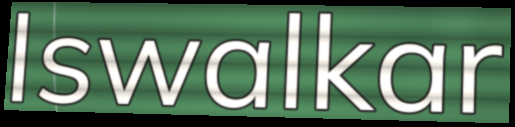
Iswalkar